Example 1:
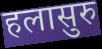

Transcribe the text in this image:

हलासुरु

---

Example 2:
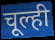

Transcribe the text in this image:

चूल्ही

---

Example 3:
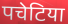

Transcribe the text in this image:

पचेटिया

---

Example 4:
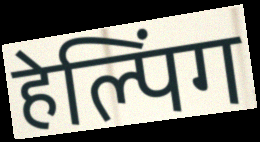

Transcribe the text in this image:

हेल्पिंग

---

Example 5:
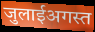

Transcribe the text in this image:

जुलाईअगस्त